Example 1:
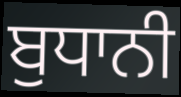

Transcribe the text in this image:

ਬੁਧਾਨੀ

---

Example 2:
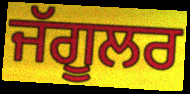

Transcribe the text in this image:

ਜੱਗੂਲਰ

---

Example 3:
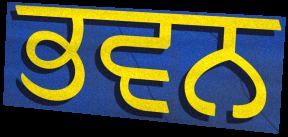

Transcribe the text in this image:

ਭਵਨ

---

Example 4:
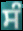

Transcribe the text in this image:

ਸੰ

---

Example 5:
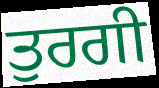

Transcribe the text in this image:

ਤੁਰਗੀ